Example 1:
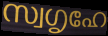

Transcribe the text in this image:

സ്വഗൃഹേ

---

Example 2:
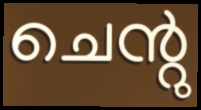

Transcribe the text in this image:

ചെന്റു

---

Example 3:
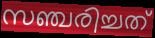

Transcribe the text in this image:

സഞ്ചരിച്ചത്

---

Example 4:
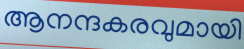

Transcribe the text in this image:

ആനന്ദകരവുമായി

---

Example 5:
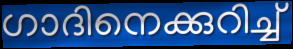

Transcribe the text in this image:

ഗാദിനെക്കുറിച്ച്